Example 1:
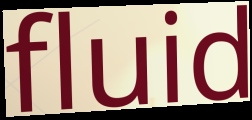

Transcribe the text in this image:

fluid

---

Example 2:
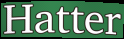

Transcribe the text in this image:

Hatter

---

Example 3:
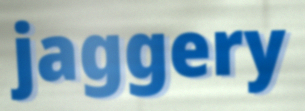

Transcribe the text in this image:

jaggery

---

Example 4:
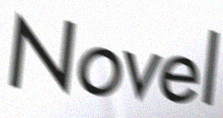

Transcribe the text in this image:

Novel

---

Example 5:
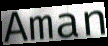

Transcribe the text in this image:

Aman